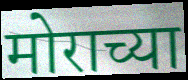
मोराच्या